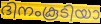
ദിനംകൂടിയാ